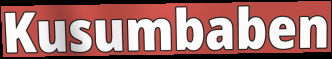
Kusumbaben